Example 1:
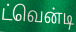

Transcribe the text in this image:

ட்வென்டி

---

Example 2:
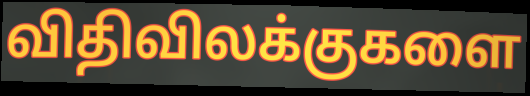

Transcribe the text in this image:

விதிவிலக்குகளை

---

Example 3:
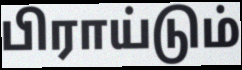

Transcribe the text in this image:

பிராய்டும்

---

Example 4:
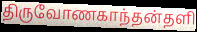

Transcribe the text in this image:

திருவோணகாந்தன்தளி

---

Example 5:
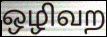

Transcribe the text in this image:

ஒழிவற